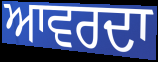
ਆਵਰਦਾ